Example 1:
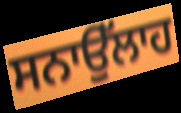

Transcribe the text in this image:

ਸਨਾਉੱਲਾਹ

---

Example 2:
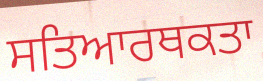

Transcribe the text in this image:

ਸਤਿਆਰਥਕਤਾ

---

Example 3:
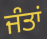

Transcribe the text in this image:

ਜੰਤਾਂ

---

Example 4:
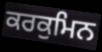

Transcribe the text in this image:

ਕਰਕੁਮਿਨ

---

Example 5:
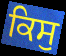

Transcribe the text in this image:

ਕਿਸੁ